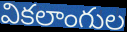
వికలాంగుల